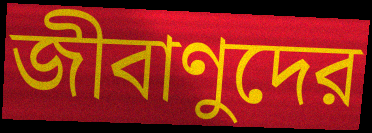
জীবাণুদের